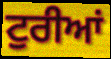
ਟੁਰੀਆਂ